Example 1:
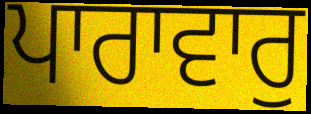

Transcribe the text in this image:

ਪਾਰਾਵਾਰੁ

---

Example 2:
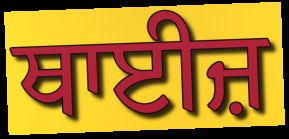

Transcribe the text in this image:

ਥਾਈਜ਼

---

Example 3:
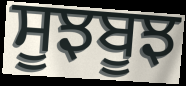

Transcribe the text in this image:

ਸੂਝਬੂਝ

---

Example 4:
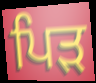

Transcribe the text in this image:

ਪਿੜ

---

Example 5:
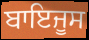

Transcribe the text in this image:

ਬਾਇਜੂਸ